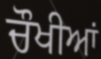
ਚੌਖੀਆਂ